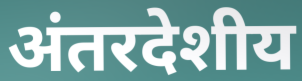
अंतरदेशीय